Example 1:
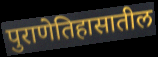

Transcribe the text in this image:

पुराणेतिहासातील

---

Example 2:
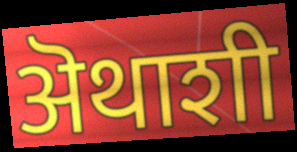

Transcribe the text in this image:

ऄथाशी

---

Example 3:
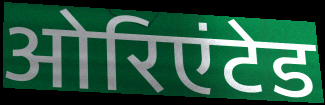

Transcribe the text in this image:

ओरिएंटेड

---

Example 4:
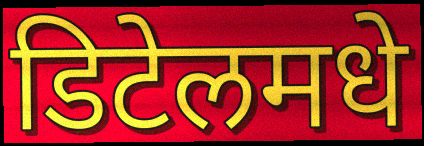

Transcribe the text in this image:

डिटेलमधे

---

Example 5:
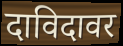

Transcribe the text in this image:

दाविदावर